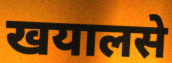
खयालसे